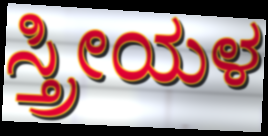
ಸ್ತ್ರೀಯಳ